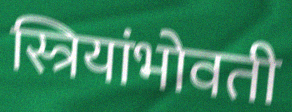
स्त्रियांभोवती